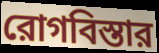
রোগবিস্তার